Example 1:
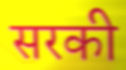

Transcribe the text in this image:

सरकी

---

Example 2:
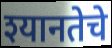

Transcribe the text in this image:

श्यानतेचे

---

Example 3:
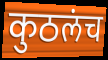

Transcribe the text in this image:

कुठलंच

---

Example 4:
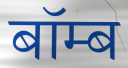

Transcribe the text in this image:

बॉम्ब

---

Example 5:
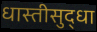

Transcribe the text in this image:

धास्तीसुद्धा